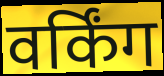
वर्किंग